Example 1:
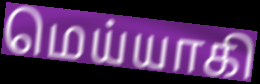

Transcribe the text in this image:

மெய்யாகி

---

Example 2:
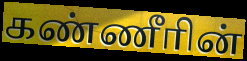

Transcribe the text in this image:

கண்ணீரின்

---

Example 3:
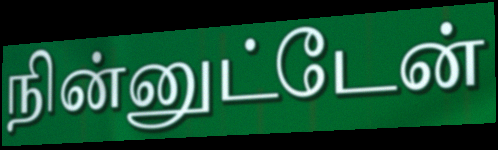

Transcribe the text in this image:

நின்னுட்டேன்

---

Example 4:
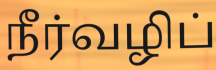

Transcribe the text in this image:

நீர்வழிப்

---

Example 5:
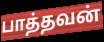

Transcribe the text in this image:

பாத்தவன்